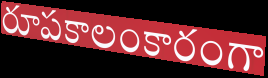
రూపకాలంకారంగా